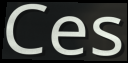
Ces